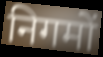
निगमों